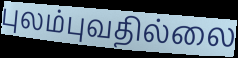
புலம்புவதில்லை